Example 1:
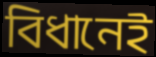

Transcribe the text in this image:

বিধানেই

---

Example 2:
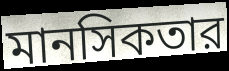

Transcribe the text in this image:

মানসিকতার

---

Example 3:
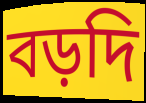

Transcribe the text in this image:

বড়দি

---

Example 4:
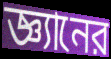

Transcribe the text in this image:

জ্ঞ্যানের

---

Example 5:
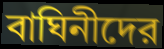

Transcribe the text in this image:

বাঘিনীদের